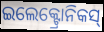
ଇଲେକ୍ଟ୍ରୋନିକସ୍